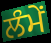
ਲੰਮੇਂ